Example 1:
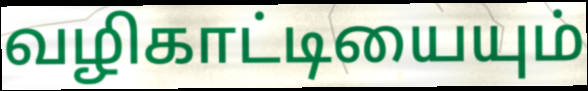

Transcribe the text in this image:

வழிகாட்டியையும்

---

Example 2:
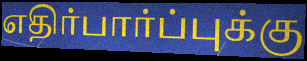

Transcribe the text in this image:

எதிர்பார்ப்புக்கு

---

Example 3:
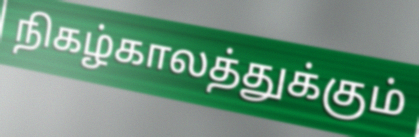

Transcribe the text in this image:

நிகழ்காலத்துக்கும்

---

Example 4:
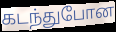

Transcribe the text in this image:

கடந்துபோன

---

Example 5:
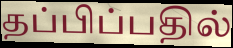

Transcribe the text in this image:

தப்பிப்பதில்